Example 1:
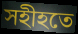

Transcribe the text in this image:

সহীহতে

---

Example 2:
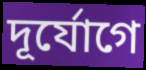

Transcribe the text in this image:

দূর্যোগে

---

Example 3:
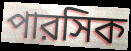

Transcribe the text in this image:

পারসিক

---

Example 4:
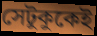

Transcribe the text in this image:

সেটুকুকেই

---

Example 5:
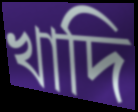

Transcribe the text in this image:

খাদি